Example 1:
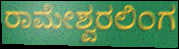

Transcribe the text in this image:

ರಾಮೇಶ್ವರಲಿಂಗ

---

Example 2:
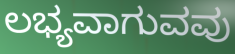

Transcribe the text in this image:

ಲಭ್ಯವಾಗುವವು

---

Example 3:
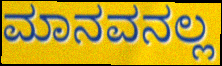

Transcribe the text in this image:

ಮಾನವನಲ್ಲ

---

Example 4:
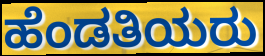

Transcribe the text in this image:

ಹೆಂಡತಿಯರು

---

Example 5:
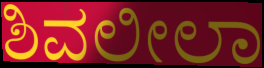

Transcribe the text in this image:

ಶಿವಲೀಲಾ